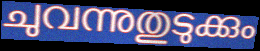
ചുവന്നുതുടുക്കും